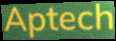
Aptech